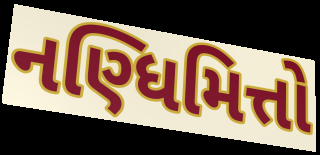
નણ્ધિમિત્તો